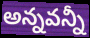
అన్నవన్నీ